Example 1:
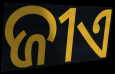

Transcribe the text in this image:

ଜୀଏ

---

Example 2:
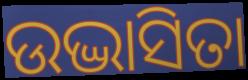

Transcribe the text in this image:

ଉଦ୍ଭାସିତା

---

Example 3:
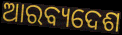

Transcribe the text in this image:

ଆରବ୍ୟଦେଶ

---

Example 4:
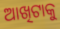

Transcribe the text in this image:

ଆଖିଟାକୁ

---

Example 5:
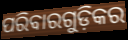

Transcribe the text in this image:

ପରିବାରଗୁଡ଼ିକର